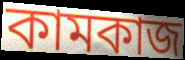
কামকাজ